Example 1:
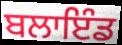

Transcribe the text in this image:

ਬਲਾਇੰਡ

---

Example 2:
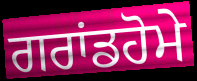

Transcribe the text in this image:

ਗਰਾਂਡਹੋਮੇ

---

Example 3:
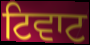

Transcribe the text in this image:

ਟਿਵਾਟ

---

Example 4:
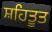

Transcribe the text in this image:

ਸ਼ਹਿਤੂਤ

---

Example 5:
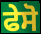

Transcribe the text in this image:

ਫੇਸੋ